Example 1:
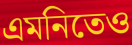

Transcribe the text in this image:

এমনিতেও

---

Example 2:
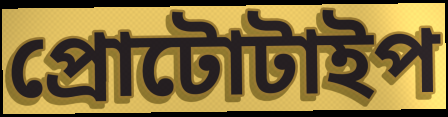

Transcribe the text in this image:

প্রোটোটাইপ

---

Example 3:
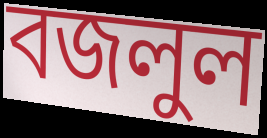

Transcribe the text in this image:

বজলুল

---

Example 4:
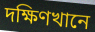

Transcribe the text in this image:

দক্ষিণখানে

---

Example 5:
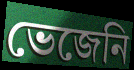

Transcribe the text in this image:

ভেজেনি